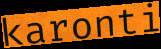
karonti